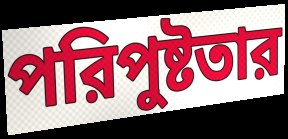
পরিপুষ্টতার